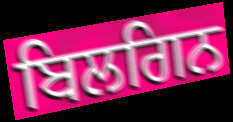
ਬਿਲਗਿਨ